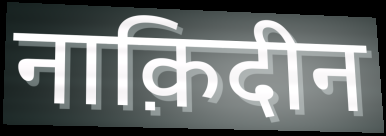
नाक़िदीन